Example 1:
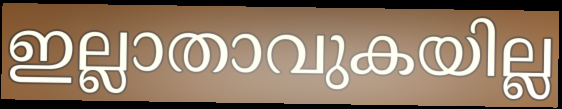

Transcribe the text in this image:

ഇല്ലാതാവുകയില്ല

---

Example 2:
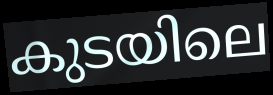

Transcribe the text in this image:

കുടയിലെ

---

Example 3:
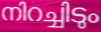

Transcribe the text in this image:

നിറച്ചിടും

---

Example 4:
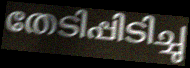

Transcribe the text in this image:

തേടിപ്പിടിച്ചു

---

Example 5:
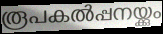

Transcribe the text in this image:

രൂപകൽപ്പനയ്ക്കും